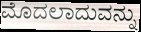
ಮೊದಲಾದುವನ್ನು